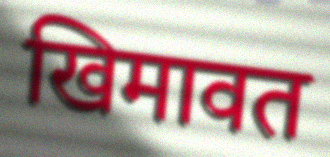
खिमावत